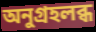
অনুগ্রহলব্ধ